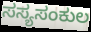
ಸಸ್ಯಸಂಕುಲ